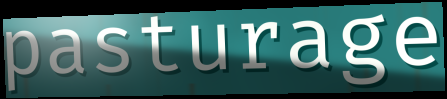
pasturage